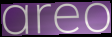
areo